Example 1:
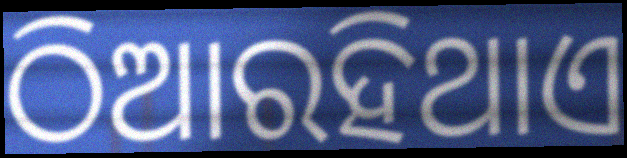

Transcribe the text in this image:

ଠିଆରହିଥାଏ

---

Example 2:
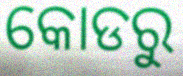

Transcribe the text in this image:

କୋଡରୁ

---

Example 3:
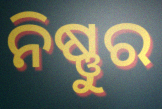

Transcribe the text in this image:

ନିଷ୍ଣୁର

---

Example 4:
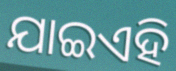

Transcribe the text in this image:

ଯାଇଏହି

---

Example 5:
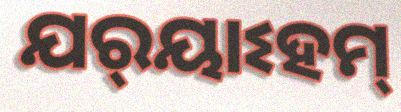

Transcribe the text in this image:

ଯର୍‌ୟାଽହମ୍